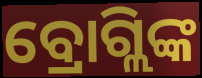
ବ୍ରୋଗ୍ଲିଙ୍କ